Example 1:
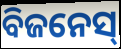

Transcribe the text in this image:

ବିଜନେସ୍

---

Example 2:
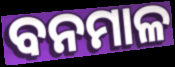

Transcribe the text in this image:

ବନମାଳ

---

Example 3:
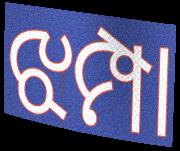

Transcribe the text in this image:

ଝମ୍ପା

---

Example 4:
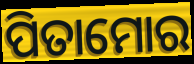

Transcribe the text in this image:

ପିତାମୋର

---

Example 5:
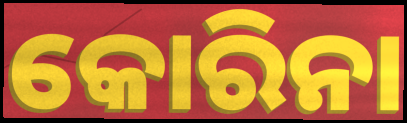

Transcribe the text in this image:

କୋରିନା